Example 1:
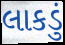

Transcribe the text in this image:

લાકડું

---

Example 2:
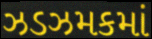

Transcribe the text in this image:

ઝડઝમકમાં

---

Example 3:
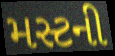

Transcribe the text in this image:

મસ્ટની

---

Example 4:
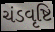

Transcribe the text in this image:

ચંડવૃષ્ટિ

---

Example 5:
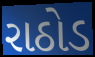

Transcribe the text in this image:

રાઠોડ